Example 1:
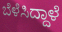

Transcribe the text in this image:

ಬೆಳೆಸಿದ್ದಾಳೆ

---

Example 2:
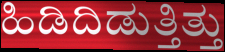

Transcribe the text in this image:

ಹಿಡಿದಿಡುತ್ತಿತ್ತು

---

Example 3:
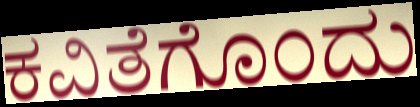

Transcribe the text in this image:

ಕವಿತೆಗೊಂದು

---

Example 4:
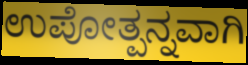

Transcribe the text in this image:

ಉಪೋತ್ಪನ್ನವಾಗಿ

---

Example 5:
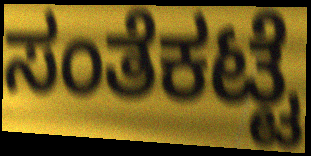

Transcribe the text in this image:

ಸಂತೆಕಟ್ಟೆ